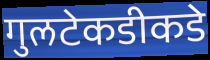
गुलटेकडीकडे